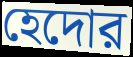
হেদোর